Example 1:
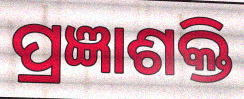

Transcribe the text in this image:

ପ୍ରଜ୍ଞାଶକ୍ତି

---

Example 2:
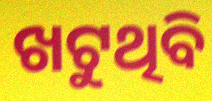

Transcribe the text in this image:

ଖଟୁଥିବି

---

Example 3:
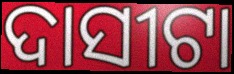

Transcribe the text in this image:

ଦାସୀଟା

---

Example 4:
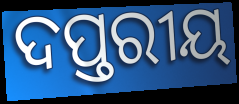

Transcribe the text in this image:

ଦପ୍ତରୀୟ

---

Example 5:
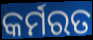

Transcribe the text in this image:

କର୍ମରତ